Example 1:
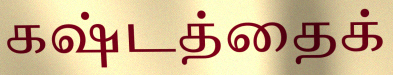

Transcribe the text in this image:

கஷ்டத்தைக்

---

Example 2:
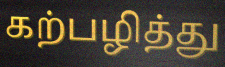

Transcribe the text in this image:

கற்பழித்து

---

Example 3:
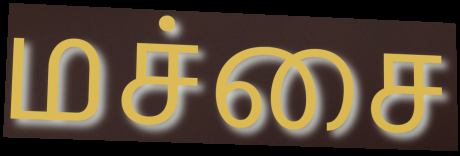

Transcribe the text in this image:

மச்சை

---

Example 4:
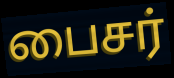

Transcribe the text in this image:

பைசர்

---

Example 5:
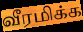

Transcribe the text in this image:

வீரமிக்க